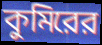
কুমিরের